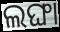
ଲଙ୍ଘା